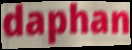
daphan